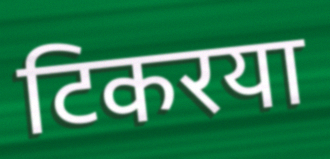
टिकरया